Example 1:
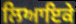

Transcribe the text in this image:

ਲਿਆਇਕੇ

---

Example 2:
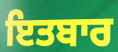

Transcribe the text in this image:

ਇਤਬਾਰ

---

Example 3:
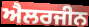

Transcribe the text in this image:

ਐਲਰਜੀਨ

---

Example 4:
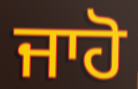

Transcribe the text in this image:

ਜਾਹੋ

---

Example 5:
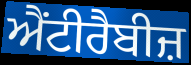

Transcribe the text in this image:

ਐਂਟੀਰੈਬੀਜ਼